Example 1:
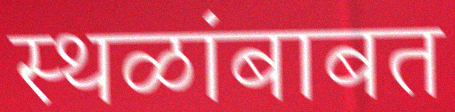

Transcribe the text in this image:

स्थळांबाबत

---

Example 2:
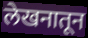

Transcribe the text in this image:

लेखनातून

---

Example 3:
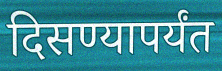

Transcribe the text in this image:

दिसण्यापर्यंत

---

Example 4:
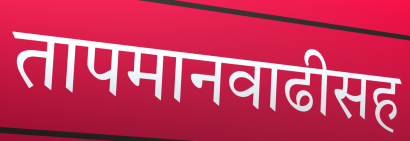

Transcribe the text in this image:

तापमानवाढीसह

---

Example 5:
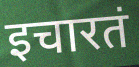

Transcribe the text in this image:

इचारतं